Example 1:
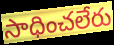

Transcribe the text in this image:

సాధించలేరు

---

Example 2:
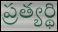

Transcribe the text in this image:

ప్రత్యర్థి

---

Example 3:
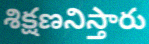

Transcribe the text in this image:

శిక్షణనిస్తారు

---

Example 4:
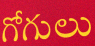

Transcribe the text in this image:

గోగులు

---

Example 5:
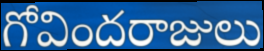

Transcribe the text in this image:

గోవిందరాజులు